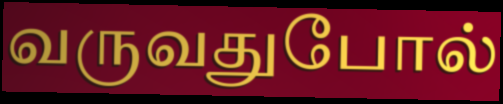
வருவதுபோல்